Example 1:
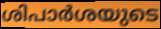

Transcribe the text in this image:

ശിപാർശയുടെ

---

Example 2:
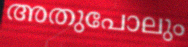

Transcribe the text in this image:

അതുപോലും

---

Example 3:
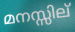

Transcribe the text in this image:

മനസ്സില്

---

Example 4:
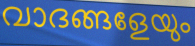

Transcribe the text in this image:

വാദങ്ങളേയും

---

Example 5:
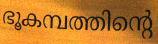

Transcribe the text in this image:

ഭൂകമ്പത്തിന്റെ